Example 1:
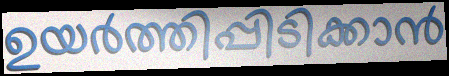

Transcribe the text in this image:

ഉയർത്തിപ്പിടിക്കാൻ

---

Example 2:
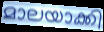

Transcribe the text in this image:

മാലയാക്കി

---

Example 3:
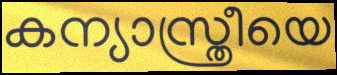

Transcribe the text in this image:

കന്യാസ്ത്രീയെ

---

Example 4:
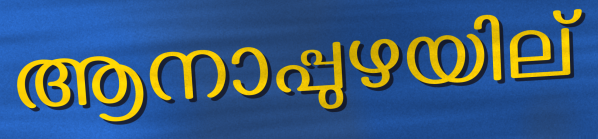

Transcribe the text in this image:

ആനാപ്പുഴയില്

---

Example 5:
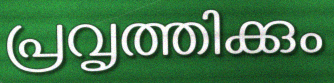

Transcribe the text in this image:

പ്രവൃത്തിക്കും